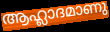
ആഹ്ലാദമാണു